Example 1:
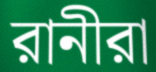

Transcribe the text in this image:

রানীরা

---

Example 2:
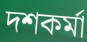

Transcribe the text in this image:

দশকর্মা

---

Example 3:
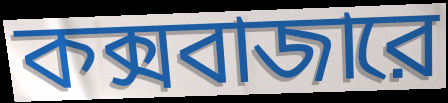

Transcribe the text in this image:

কক্সবাজারে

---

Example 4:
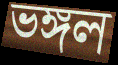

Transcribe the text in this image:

ভঙ্গল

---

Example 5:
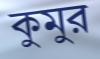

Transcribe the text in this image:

কুমুর